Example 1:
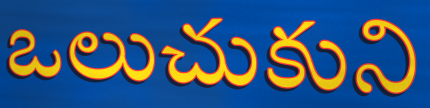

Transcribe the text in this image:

ఒలుచుకుని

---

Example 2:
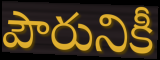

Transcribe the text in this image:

పౌరునికీ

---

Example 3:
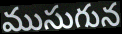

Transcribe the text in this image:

ముసుగున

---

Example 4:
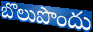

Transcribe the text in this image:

బొలుపొందు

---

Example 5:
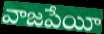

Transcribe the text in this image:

వాజపేయీ